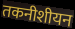
तकनीशीयन